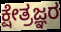
ಕ್ಷೇತ್ರಜ್ಞರ